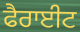
ਫੈਰਾਈਟ